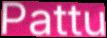
Pattu